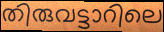
തിരുവട്ടാറിലെ